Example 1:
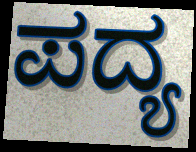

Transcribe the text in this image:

ಪದ್ಯ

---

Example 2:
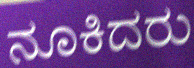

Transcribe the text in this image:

ನೂಕಿದರು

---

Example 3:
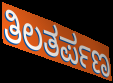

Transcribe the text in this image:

ತಿಲತರ್ಪಣ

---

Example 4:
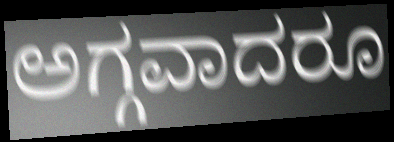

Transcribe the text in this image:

ಅಗ್ಗವಾದರೂ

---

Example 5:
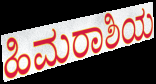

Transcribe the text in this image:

ಹಿಮರಾಶಿಯ